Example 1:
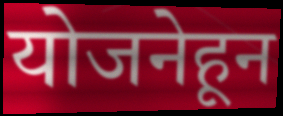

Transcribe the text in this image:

योजनेहून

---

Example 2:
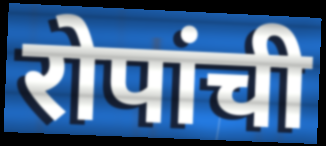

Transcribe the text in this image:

रोपांची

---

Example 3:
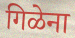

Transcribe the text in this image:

गिळेना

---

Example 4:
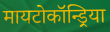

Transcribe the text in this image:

मायटोकॉन्ड्रिया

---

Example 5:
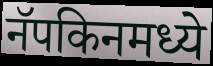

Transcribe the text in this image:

नॅपकिनमध्ये